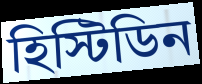
হিস্টিডিন